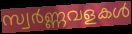
സ്വർണ്ണവളകൾ